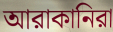
আরাকানিরা